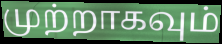
முற்றாகவும்